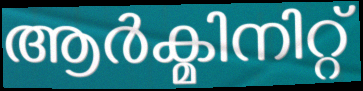
ആർക്മിനിറ്റ്